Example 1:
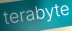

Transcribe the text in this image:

terabyte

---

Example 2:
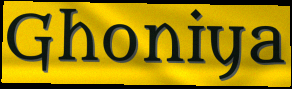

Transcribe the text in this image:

Ghoniya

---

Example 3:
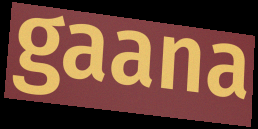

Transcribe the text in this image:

gaana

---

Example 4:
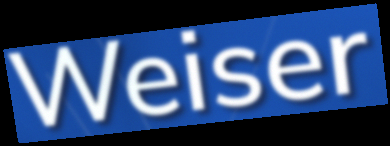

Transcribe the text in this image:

Weiser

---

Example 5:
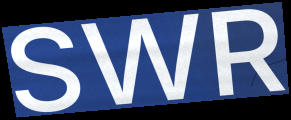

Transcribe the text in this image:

SWR